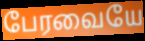
பேரவையே